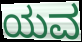
ಯವ